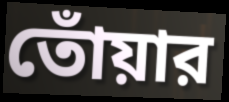
তোঁয়ার